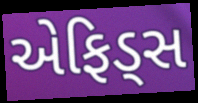
એફિડ્સ